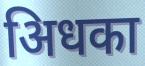
अिधका